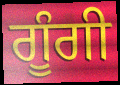
ਗੂੰਗੀ